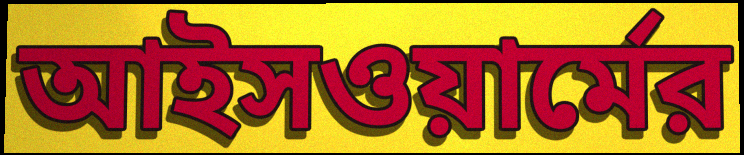
আইসওয়ার্মের